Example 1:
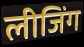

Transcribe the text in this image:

लीजिंग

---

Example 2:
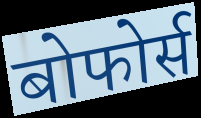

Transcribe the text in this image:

बोफोर्स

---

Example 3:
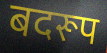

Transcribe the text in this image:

बदरूप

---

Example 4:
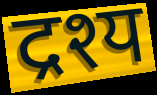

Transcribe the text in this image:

द्रश्य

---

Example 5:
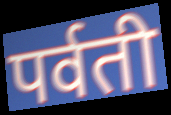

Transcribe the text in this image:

पर्वती